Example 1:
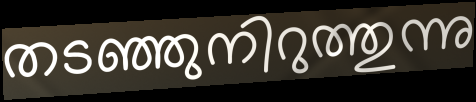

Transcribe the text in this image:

തടഞ്ഞുനിറുത്തുന്നു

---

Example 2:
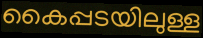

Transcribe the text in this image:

കൈപ്പടയിലുള്ള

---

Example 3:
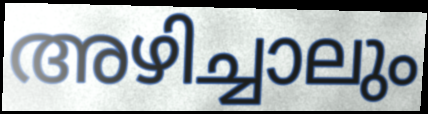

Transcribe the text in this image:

അഴിച്ചാലും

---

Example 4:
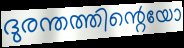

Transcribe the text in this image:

ദുരന്തത്തിന്റെയോ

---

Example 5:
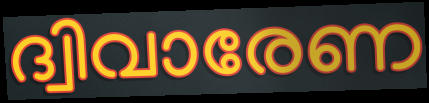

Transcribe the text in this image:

ദ്വിവാരേണ